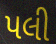
પલી